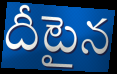
దీటైన